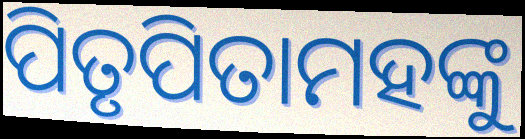
ପିତୃପିତାମହଙ୍କୁ